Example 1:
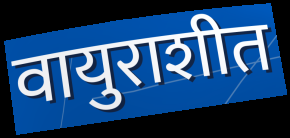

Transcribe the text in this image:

वायुराशीत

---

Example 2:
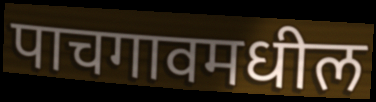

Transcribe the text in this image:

पाचगावमधील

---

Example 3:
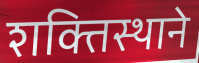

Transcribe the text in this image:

शक्तिस्थाने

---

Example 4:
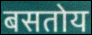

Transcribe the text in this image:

बसतोय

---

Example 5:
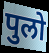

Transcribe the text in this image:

पुलो